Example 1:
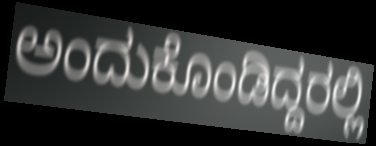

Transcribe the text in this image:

ಅಂದುಕೊಂಡಿದ್ದರಲ್ಲಿ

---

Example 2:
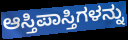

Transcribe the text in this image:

ಆಸ್ತಿಪಾಸ್ತಿಗಳನ್ನು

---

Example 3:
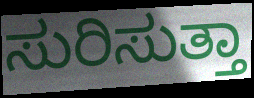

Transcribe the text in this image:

ಸುರಿಸುತ್ತಾ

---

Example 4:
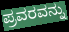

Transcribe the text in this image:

ಪ್ರವರವನ್ನು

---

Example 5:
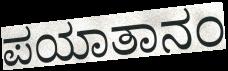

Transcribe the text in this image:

ಪಯಾತಾನಂ